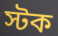
স্টক